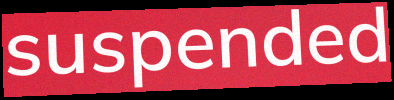
suspended